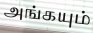
அங்கயும்